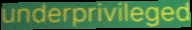
underprivileged